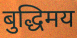
बुद्धिमय